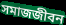
সমাজজীবন